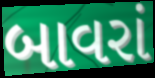
બાવરાં